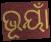
ଭୂୟାଁ